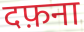
दफ़ना